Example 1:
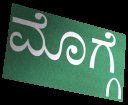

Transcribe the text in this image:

ಮೊಗ್ಗೆ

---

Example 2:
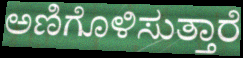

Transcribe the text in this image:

ಅಣಿಗೊಳಿಸುತ್ತಾರೆ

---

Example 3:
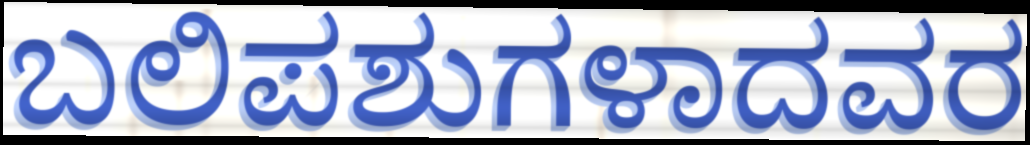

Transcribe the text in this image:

ಬಲಿಪಶುಗಳಾದವರ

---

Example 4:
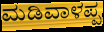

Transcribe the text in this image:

ಮಡಿವಾಳಪ್ಪ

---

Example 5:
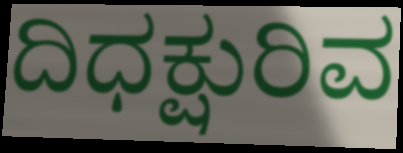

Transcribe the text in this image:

ದಿಧಕ್ಷುರಿವ